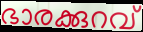
ഭാരക്കുറവ്